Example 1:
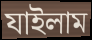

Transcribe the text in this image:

যাইলাম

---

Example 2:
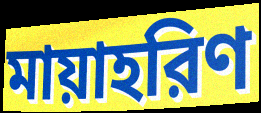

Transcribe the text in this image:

মায়াহরিণ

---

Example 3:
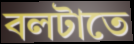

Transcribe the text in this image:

বলটাতে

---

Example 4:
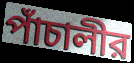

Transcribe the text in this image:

পাঁচালীর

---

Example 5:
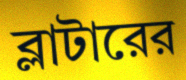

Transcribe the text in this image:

ব্লাটারের